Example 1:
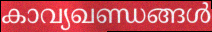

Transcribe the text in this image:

കാവ്യഖണ്ഡങ്ങൾ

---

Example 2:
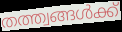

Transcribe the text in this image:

തത്ത്വങ്ങൾക്ക്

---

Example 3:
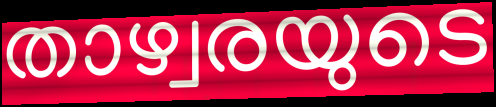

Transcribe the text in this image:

താഴ്വരയുടെ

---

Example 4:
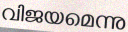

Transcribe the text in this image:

വിജയമെന്നു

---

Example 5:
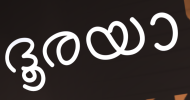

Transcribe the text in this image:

ദൂരയാ